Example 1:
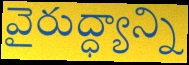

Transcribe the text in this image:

వైరుద్ధ్యాన్ని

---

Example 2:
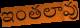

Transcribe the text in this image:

ఇంతలావు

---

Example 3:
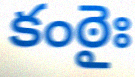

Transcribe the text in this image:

కంఠైః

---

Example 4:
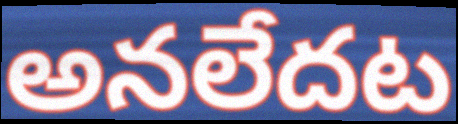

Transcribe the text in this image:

అనలేదట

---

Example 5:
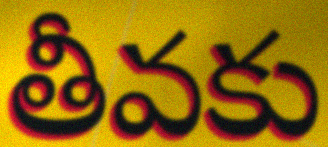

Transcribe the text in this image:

తీవకు